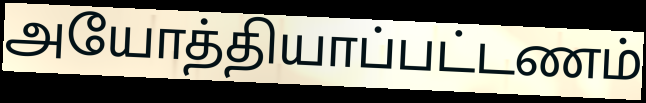
அயோத்தியாப்பட்டணம்